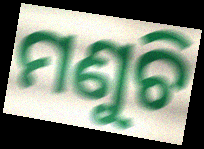
ମଣୁଚି